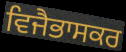
ਵਿਜੈਭਾਸਕਰ